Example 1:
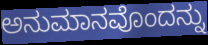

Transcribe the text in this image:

ಅನುಮಾನವೊಂದನ್ನು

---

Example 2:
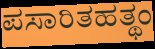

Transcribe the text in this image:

ಪಸಾರಿತಹತ್ಥಂ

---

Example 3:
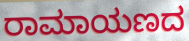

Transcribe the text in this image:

ರಾಮಾಯಣದ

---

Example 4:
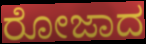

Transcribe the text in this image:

ರೋಜಾದ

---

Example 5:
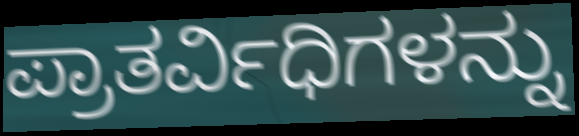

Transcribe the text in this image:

ಪ್ರಾತರ್ವಿಧಿಗಳನ್ನು